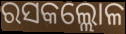
ରସକଲ୍ଲୋଳ